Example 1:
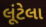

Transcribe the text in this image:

લૂંટેલા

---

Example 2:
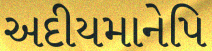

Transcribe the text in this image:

અદીયમાનેપિ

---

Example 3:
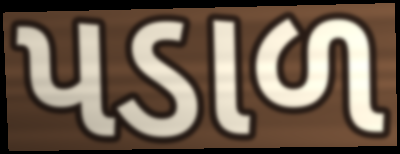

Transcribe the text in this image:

પડાળ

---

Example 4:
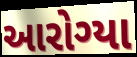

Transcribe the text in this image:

આરોગ્યા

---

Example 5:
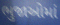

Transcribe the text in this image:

ભુજાઓમાં